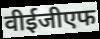
वीईजीएफ